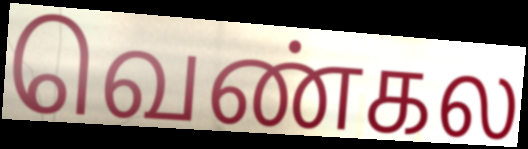
வெண்கல